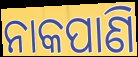
ନାକପାଣି